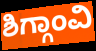
ಶಿಗ್ಗಾಂವಿ